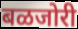
बळजोरी